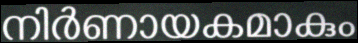
നിർണായകമാകും